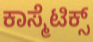
ಕಾಸ್ಮೆಟಿಕ್ಸ್